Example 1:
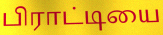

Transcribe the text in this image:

பிராட்டியை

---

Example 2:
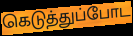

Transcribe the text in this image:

கெடுத்துப்போட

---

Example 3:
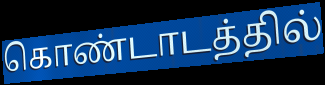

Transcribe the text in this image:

கொண்டாடத்தில்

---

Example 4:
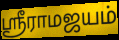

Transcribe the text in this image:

ஸ்ரீராமஜயம்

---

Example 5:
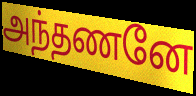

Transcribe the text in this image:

அந்தணனே